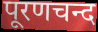
पूरणचन्द